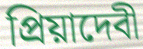
প্রিয়াদেবী